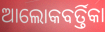
ଆଲୋକବର୍ତ୍ତିକା